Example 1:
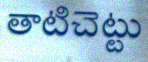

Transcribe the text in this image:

తాటిచెట్టు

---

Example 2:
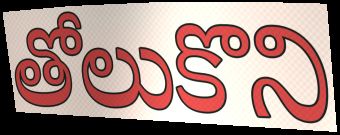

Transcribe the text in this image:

తోలుకొని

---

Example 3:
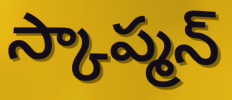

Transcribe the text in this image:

స్కాప్మన్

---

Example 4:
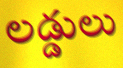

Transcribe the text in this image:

లడ్డులు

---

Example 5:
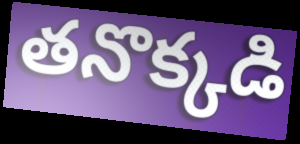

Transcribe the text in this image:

తనొక్కడి